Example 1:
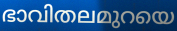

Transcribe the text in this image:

ഭാവിതലമുറയെ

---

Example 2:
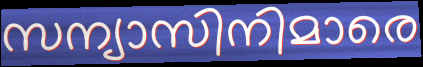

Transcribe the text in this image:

സന്യാസിനിമാരെ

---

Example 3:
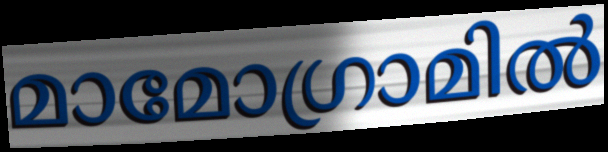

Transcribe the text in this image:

മാമോഗ്രാമിൽ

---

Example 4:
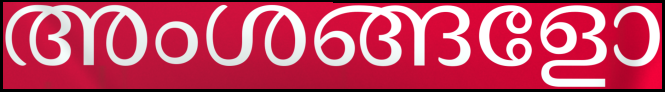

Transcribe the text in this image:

അംശങ്ങളോ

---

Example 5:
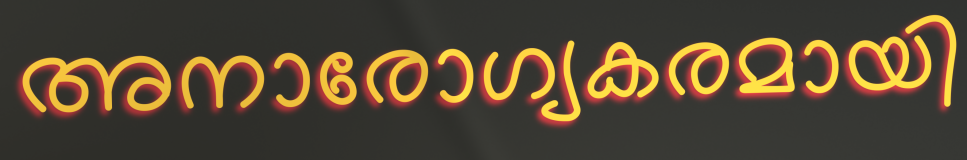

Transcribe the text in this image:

അനാരോഗ്യകരമായി